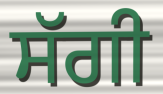
ਸੱਗੀ